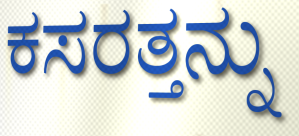
ಕಸರತ್ತನ್ನು